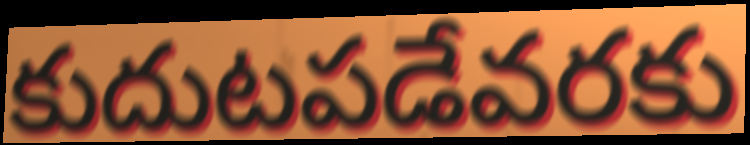
కుదుటపడేవరకు